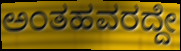
ಅಂತಹವರದ್ದೇ